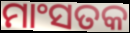
ମାଂସତକ